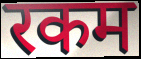
रकम